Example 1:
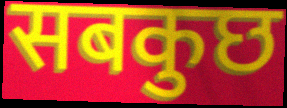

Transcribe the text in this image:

सबकुछ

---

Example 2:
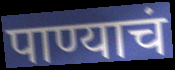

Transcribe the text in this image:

पाण्याचं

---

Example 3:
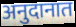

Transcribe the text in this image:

अनुदानात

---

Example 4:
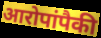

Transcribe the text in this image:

आरोपांपैकी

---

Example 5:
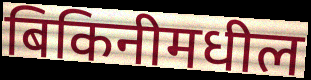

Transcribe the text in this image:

बिकिनीमधील